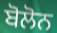
ਬੋਲੋਨ